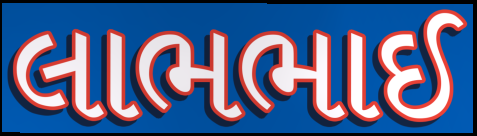
લાભભાઈ